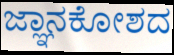
ಜ್ಞಾನಕೋಶದ